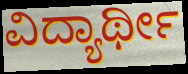
ವಿದ್ಯಾರ್ಥೀ